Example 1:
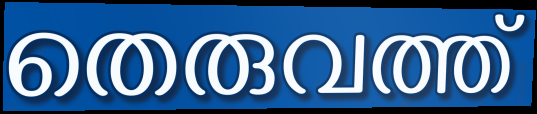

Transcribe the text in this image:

തെരുവത്ത്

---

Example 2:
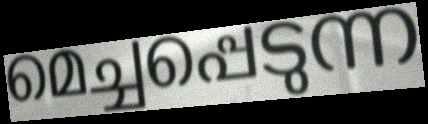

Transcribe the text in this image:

മെച്ചപ്പെടുന്ന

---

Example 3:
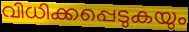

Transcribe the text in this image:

വിധിക്കപ്പെടുകയും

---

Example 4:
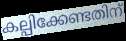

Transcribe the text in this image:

കല്പിക്കേണ്ടതിന്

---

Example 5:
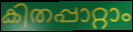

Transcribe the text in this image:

കിതപ്പാറ്റാം